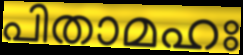
പിതാമഹഃ